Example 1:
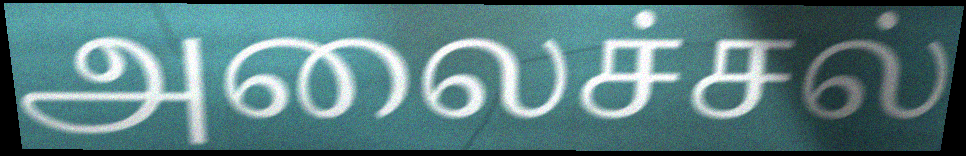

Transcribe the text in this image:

அலைச்சல்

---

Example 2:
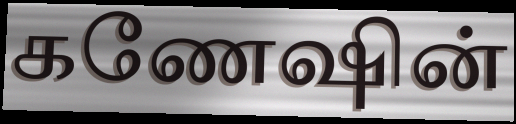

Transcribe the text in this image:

கணேஷின்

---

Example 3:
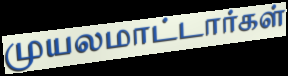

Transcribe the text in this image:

முயலமாட்டார்கள்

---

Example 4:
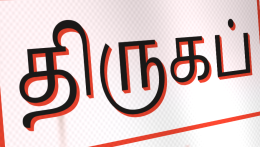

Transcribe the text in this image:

திருகப்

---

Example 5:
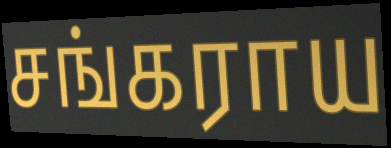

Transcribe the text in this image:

சங்கராய